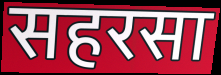
सहरसा